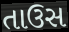
તાઉસ